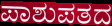
ಪಾಶುಪತದ